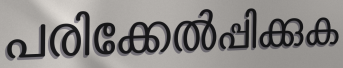
പരിക്കേൽപ്പിക്കുക